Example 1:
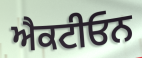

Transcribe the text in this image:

ਐਕਟੀਓਨ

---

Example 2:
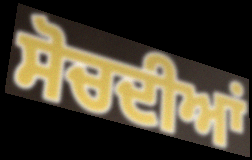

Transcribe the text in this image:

ਸੋਚਦੀਆਂ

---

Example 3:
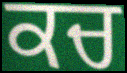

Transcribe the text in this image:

ਕਚ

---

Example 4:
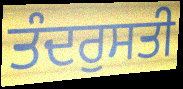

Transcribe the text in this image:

ਤੰਦਰੁਸਤੀ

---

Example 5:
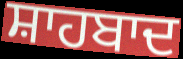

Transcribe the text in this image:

ਸ਼ਾਹਬਾਦ